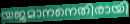
യജമാനനെതിരായി